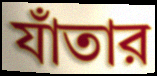
যাঁতার